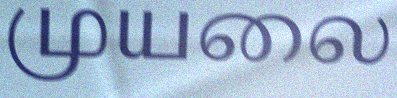
முயலை